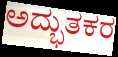
ಅದ್ಭುತಕರ